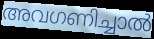
അവഗണിച്ചാൽ